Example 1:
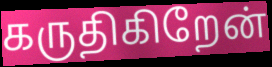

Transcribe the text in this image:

கருதிகிறேன்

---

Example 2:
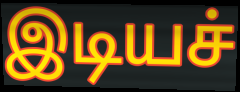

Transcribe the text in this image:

இடியச்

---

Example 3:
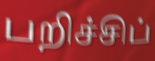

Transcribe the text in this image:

பறிச்சிப்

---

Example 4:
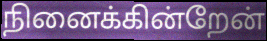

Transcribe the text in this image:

நினைக்கின்றேன்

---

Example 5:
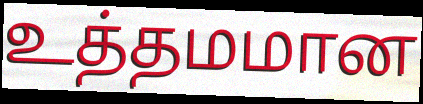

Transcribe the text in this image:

உத்தமமான